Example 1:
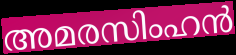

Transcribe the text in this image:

അമരസിംഹൻ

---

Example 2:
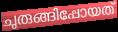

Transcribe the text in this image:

ചുരുങ്ങിപ്പോയത്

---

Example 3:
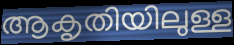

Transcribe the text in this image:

ആകൃതിയിലുള്ള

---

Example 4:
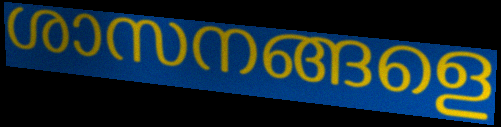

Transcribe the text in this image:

ശാസനങ്ങളെ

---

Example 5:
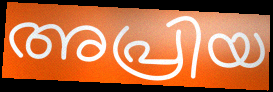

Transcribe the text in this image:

അപ്രിയ